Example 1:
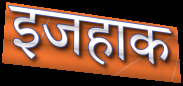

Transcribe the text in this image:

इजहाक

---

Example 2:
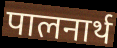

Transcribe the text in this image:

पालनार्थ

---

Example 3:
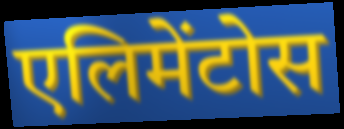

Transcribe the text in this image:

एलिमेंटोस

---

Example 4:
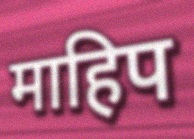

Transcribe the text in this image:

माहिप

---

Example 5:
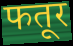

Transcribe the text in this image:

फतूर